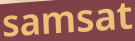
samsat